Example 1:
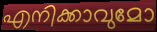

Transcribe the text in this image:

എനിക്കാവുമോ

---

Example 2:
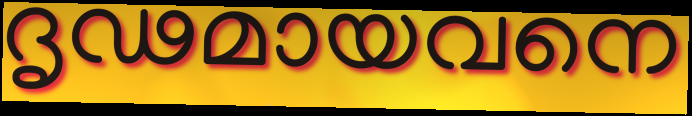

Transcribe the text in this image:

ദൃഢമായവനെ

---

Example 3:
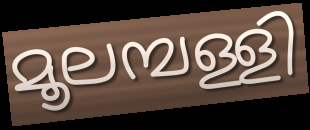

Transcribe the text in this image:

മൂലമ്പള്ളി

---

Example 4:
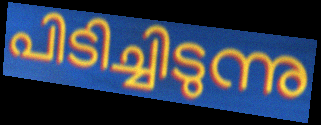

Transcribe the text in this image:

പിടിച്ചിടുന്നു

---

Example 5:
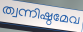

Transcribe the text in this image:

ത്വന്നിഷ്ഠമേവ